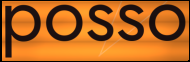
posso